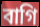
বাগি